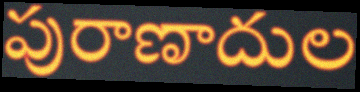
పురాణాదుల